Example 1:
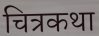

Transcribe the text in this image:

चित्रकथा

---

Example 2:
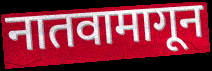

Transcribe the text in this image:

नातवामागून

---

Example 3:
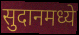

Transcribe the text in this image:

सुदानमध्ये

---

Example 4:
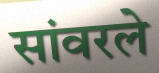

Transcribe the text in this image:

सांवरले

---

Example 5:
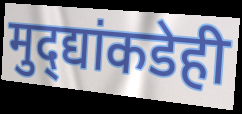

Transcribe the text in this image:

मुद्द्यांकडेही